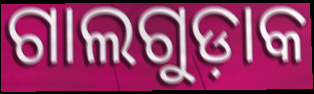
ଗାଲଗୁଡ଼ାକ